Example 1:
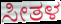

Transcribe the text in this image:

ಸೀತಳ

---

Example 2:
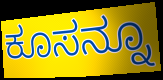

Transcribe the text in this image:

ಕೂಸನ್ನೂ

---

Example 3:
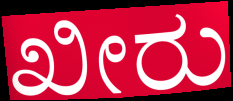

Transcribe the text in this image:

ಖೀರು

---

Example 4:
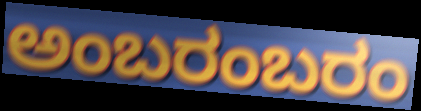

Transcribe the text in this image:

ಅಂಬರಂಬರಂ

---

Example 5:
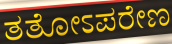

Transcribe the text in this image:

ತತೋಽಪರೇಣ